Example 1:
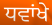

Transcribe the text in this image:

ਧਵਾਂਖੇ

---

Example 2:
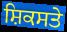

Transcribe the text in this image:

ਸ਼ਿਕਸਤੇ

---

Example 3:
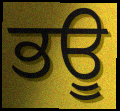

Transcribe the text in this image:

ਭਊ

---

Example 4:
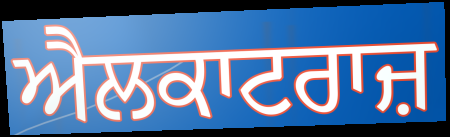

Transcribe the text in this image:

ਐਲਕਾਟਰਾਜ਼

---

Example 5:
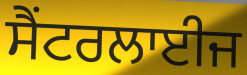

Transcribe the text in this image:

ਸੈਂਟਰਲਾਈਜ